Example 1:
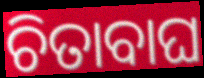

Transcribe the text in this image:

ଚିତାବାଘ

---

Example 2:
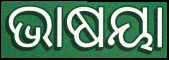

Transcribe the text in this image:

ଭାଷୟା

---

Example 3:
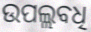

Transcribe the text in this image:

ଉପଲ୍ଲବଧି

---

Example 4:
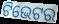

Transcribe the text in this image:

ଟିଭେଟର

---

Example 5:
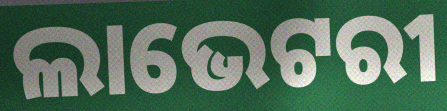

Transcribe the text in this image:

ଲାଭେଟରୀ